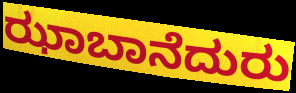
ಝಾಬಾನೆದುರು